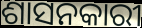
ଶାସନକାରୀ